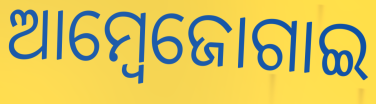
ଆମ୍ବେଜୋଗାଇ